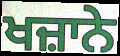
ਖਜ਼ਾਨੇ